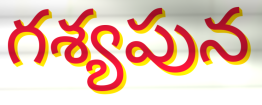
గశ్యపున